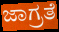
ಜಾಗ್ರತೆ